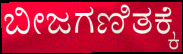
ಬೀಜಗಣಿತಕ್ಕೆ